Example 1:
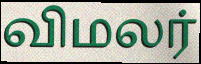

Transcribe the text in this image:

விமலர்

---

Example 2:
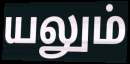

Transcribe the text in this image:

யலும்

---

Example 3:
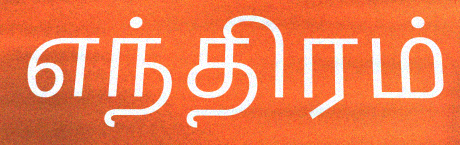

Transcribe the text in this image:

எந்திரம்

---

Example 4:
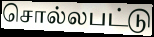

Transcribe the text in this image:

சொல்லபட்டு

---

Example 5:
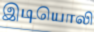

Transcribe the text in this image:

இடியொலி